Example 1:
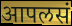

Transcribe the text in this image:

आपलसं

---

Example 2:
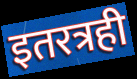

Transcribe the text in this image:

इतरत्रही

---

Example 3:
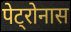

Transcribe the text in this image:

पेट्रोनास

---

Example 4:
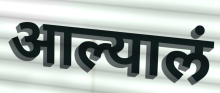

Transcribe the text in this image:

आल्यालं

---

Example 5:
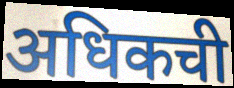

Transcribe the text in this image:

अधिकची